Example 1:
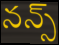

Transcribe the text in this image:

నన్స్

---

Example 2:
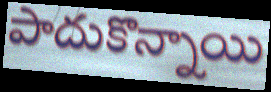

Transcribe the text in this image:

పాదుకొన్నాయి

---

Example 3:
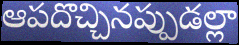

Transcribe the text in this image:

ఆపదొచ్చినప్పుడల్లా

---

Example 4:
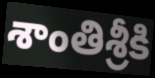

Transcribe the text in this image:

శాంతిశ్రీకి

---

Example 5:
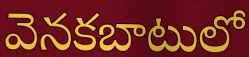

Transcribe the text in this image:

వెనకబాటులో